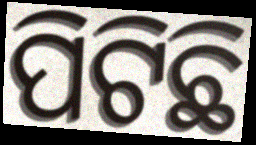
ପିଟିଛି